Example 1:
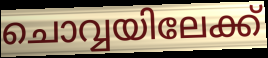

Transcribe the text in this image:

ചൊവ്വയിലേക്ക്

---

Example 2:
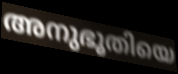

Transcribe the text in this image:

അനുഭൂതിയെ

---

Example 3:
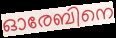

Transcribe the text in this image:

ഓരേബിനെ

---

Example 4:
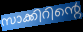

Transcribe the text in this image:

സാക്കിറിന്റെ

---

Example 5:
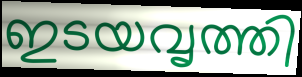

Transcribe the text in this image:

ഇടയവൃത്തി